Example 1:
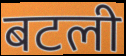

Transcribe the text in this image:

बटली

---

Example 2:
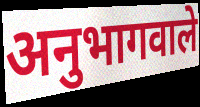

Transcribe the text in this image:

अनुभागवाले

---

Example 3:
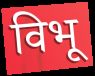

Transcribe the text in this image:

विभू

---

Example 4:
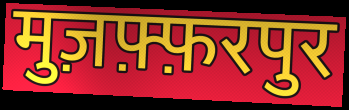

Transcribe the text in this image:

मुज़फ़्फ़रपुर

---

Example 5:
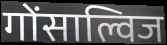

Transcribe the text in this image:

गोंसाल्विज